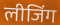
लीजिंग